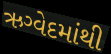
ઋગ્વેદમાંથી